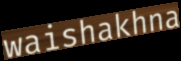
waishakhna